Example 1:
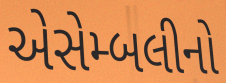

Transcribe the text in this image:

એસેમ્બલીનો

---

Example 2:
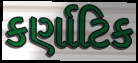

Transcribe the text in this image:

કર્ણાટિક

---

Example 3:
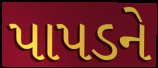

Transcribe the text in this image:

પાપડને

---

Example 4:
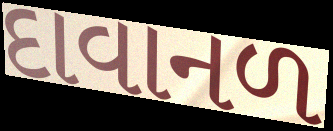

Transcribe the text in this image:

દાવાનળ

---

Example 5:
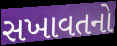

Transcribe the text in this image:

સખાવતનો